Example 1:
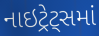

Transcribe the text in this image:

નાઇટ્રેટ્સમાં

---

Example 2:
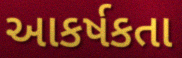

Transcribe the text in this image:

આકર્ષકતા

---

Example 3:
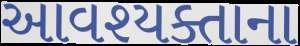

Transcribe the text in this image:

આવશ્યક્તાના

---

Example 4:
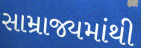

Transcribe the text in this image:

સામ્રાજ્યમાંથી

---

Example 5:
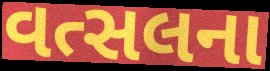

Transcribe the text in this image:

વત્સલના